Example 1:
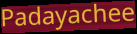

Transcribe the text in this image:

Padayachee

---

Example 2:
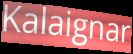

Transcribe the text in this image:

Kalaignar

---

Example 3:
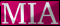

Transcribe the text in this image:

MIA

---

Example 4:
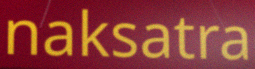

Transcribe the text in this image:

naksatra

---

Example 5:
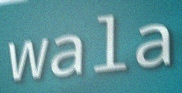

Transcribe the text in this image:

wala